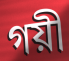
গয়ী